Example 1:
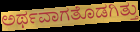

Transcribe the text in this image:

ಅರ್ಥವಾಗತೊಡಗಿತ್ತು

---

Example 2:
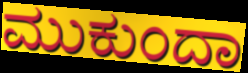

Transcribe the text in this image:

ಮುಕುಂದಾ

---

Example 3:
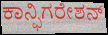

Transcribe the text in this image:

ಕಾನ್ಫಿಗರೇಶನ್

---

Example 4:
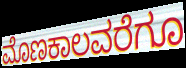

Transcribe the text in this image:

ಮೊಣಕಾಲವರೆಗೂ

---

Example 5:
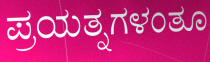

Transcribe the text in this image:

ಪ್ರಯತ್ನಗಳಂತೂ